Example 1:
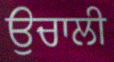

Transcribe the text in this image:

ਉਚਾਲੀ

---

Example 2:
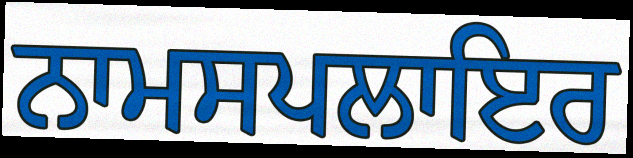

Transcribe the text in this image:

ਨਾਮਸਪਲਾਇਰ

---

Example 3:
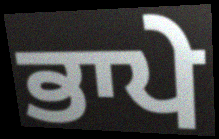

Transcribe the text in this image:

ਭਾਪੇ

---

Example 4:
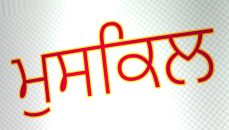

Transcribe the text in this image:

ਮੁਸਕਿਲ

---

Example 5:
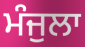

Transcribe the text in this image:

ਮੰਜੁਲਾ